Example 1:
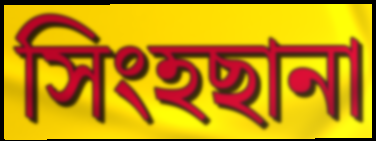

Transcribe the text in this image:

সিংহছানা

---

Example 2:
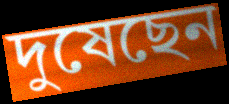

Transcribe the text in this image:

দুষেছেন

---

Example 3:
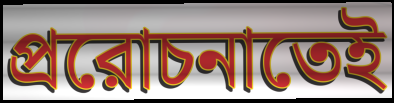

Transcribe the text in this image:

প্ররোচনাতেই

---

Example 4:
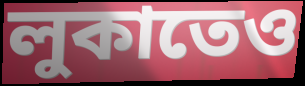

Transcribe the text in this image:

লুকাতেও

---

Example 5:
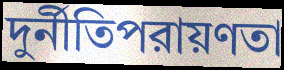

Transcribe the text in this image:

দুর্নীতিপরায়ণতা